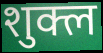
शुक्ल